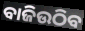
ବାଜିଉଠିବ